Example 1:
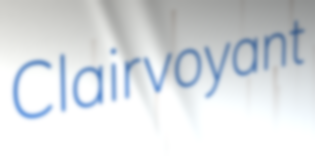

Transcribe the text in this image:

Clairvoyant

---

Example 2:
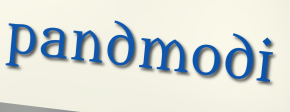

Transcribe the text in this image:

pandmodi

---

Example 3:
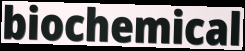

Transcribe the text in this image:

biochemical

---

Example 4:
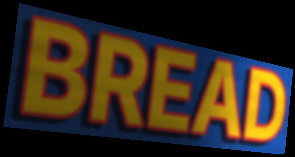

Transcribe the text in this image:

BREAD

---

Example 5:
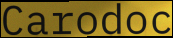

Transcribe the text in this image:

Carodoc